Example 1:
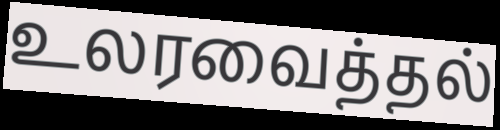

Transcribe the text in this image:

உலரவைத்தல்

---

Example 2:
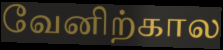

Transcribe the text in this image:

வேனிற்கால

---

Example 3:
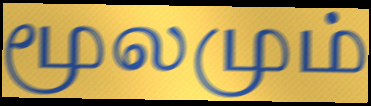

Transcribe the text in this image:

மூலமும்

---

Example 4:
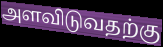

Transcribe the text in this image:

அளவிடுவதற்கு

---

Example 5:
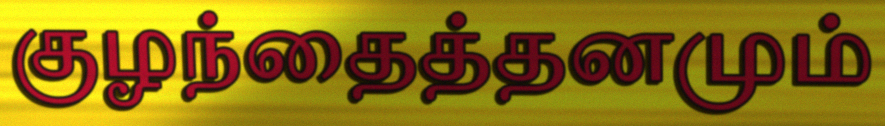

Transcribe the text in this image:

குழந்தைத்தனமும்